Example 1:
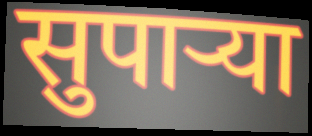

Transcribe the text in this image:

सुपार्‍या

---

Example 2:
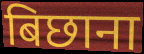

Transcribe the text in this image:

बिछाना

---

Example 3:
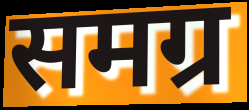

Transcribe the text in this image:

समग्र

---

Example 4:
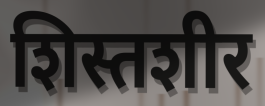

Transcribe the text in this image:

शिस्तशीर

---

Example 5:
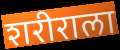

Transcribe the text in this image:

शरीराला